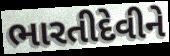
ભારતીદેવીને